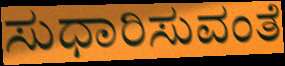
ಸುಧಾರಿಸುವಂತೆ